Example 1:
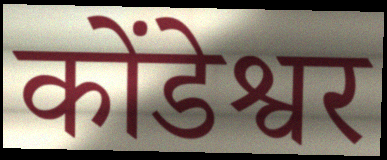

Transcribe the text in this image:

कोंडेश्वर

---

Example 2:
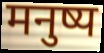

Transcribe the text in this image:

मनुष्य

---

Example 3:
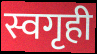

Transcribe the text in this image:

स्वगृही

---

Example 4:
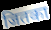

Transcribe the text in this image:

जितका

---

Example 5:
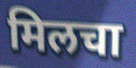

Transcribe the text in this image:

मिलचा